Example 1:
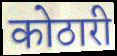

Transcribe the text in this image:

कोठारी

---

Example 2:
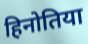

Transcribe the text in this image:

हिनोतिया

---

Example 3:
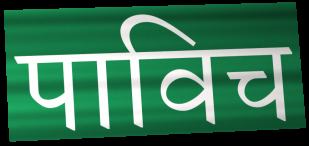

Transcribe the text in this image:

पाविच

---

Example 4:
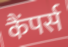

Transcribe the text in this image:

कैंपर्स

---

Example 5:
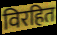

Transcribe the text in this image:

विरहित